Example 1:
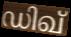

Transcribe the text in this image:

ഡിഖ്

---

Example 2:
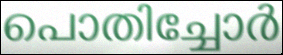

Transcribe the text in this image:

പൊതിച്ചോർ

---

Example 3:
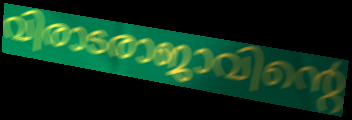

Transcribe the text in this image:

വിരാടരാജാവിന്റെ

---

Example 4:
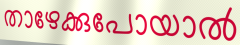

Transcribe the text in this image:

താഴേക്കുപോയാൽ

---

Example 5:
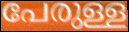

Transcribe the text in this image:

പേരുള്ള